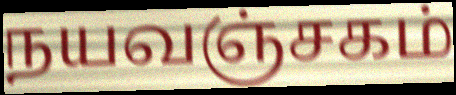
நயவஞ்சகம்